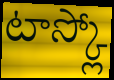
టాస్క్లో